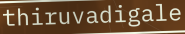
thiruvadigale